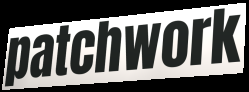
patchwork